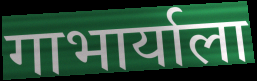
गाभार्याला